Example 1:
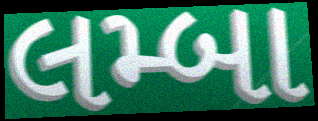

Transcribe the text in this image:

લમ્બા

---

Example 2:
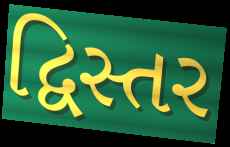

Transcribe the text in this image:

દ્વિસ્તર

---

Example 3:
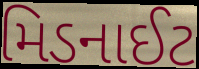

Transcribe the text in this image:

મિડનાઈટ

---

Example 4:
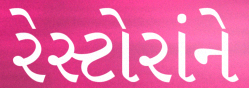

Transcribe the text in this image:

રેસ્ટોરાંને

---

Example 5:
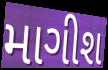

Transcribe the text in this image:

માગીશ